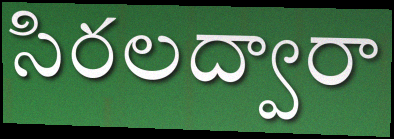
సిరలద్వారా